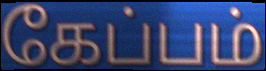
கேப்பம்